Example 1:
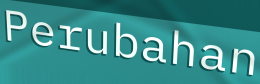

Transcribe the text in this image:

Perubahan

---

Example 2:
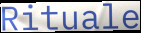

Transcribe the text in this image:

Rituale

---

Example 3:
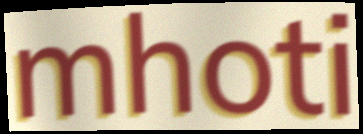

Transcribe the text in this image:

mhoti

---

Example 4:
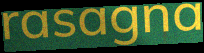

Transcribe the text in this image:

rasagna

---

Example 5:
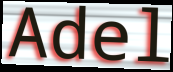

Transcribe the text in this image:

Adel